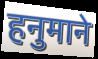
हनुमाने